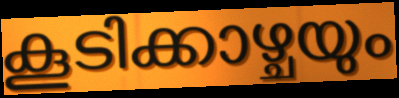
കൂടിക്കാഴ്ചയും